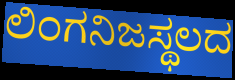
ಲಿಂಗನಿಜಸ್ಥಲದ